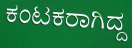
ಕಂಟಕರಾಗಿದ್ದ